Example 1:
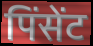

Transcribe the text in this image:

पिंसेंट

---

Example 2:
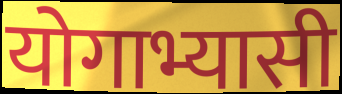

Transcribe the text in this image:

योगाभ्यासी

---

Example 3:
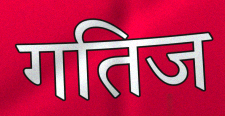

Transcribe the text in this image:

गतिज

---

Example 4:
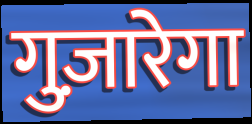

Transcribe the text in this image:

गुज़ारेगा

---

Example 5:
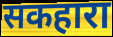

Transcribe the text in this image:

सकहारा